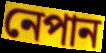
নেপান